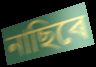
নাছিৰে